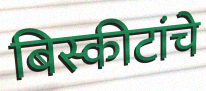
बिस्कीटांचे